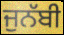
ਜੁਨੱਬੀ